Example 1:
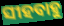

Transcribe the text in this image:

ସୀହବାହୁ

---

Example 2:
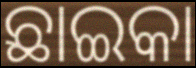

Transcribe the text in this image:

ଛାଇକା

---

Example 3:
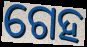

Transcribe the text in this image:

ଗେହ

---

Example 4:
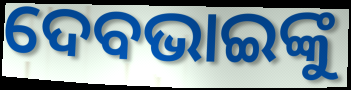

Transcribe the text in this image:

ଦେବଭାଇଙ୍କୁ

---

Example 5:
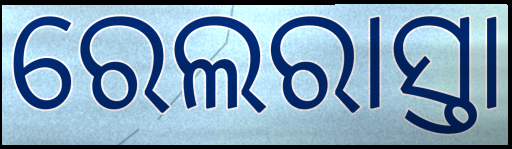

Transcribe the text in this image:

ରେଲରାସ୍ତା